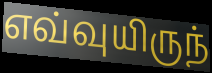
எவ்வுயிருந்